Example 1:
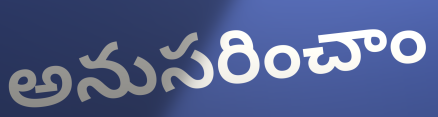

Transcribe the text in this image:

అనుసరించాం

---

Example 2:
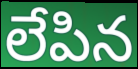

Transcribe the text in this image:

లేపిన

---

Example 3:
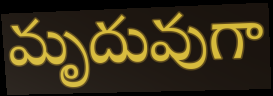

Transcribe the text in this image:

మృదువుగా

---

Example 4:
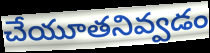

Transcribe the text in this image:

చేయూతనివ్వడం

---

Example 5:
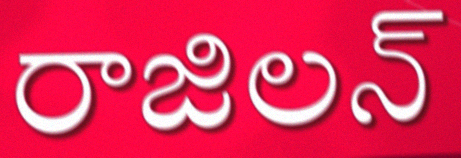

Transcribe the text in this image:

రాజిలన్